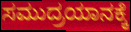
ಸಮುದ್ರಯಾನಕ್ಕೆ